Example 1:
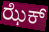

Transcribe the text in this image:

ಝೆಕ್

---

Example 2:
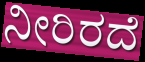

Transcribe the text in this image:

ನೀರಿರದೆ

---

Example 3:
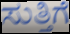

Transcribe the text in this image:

ಸುತ್ತಿಗೆ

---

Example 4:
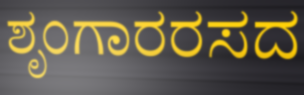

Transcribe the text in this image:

ಶೃಂಗಾರರಸದ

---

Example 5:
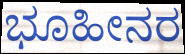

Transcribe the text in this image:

ಭೂಹೀನರ